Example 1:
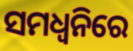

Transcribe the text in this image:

ସମଧ୍ୱନିରେ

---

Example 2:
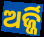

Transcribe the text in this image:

ଅର୍ଜ୍ଜି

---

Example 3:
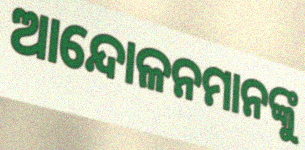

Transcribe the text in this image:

ଆନ୍ଦୋଳନମାନଙ୍କୁ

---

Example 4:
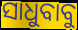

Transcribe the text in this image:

ସାଧୁବାବୁ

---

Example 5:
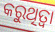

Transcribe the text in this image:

କରୁଥିତ୍ବା